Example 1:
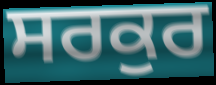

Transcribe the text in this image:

ਸਰਕੁਰ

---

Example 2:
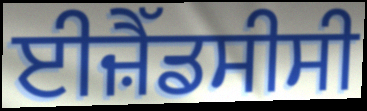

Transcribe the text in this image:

ਈਜ਼ੈੱਡਸੀਸੀ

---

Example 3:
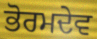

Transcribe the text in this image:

ਭੋਰਮਦੇਵ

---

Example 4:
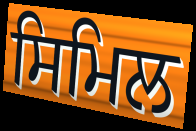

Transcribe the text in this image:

ਸਿਮਿਲ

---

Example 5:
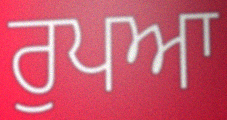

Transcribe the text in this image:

ਰੁਪਆ